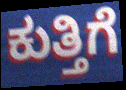
ಕುತ್ತಿಗೆ